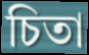
চিতা